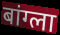
बांग्ला